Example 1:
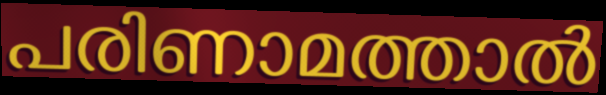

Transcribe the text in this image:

പരിണാമത്താൽ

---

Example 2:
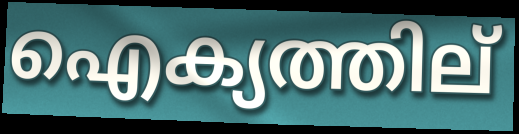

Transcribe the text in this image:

ഐക്യത്തില്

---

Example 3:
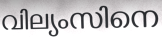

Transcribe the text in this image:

വില്യംസിനെ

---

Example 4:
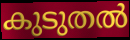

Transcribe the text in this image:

കുടുതൽ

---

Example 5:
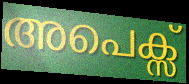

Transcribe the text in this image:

അപെക്സ്